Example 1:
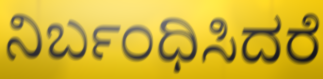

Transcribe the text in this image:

ನಿರ್ಬಂಧಿಸಿದರೆ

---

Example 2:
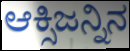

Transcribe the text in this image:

ಆಕ್ಸಿಜನ್ನಿನ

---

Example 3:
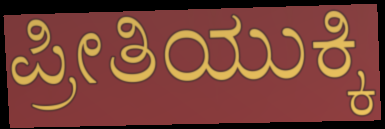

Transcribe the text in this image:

ಪ್ರೀತಿಯುಕ್ಕಿ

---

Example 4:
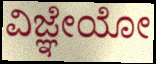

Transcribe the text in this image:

ವಿಜ್ಞೇಯೋ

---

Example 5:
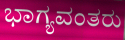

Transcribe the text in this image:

ಭಾಗ್ಯವಂತರು